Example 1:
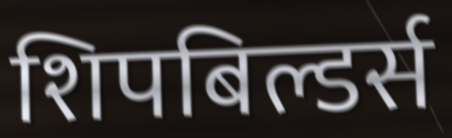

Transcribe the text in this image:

शिपबिल्डर्स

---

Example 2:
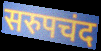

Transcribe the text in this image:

सरुपचंद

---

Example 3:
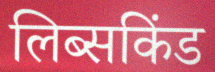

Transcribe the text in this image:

लिब्सकिंड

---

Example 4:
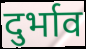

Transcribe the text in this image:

दुर्भाव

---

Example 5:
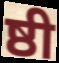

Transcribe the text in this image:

ष्ठी